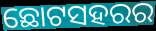
ଛୋଟସହରର